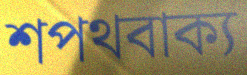
শপথবাক্য